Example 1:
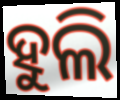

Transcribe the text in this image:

ହୁଲି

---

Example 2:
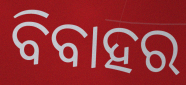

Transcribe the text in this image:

ବିବାହର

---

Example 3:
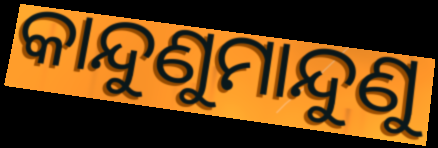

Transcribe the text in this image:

କାନ୍ଦୁଣୁମାନ୍ଦୁଣୁ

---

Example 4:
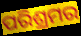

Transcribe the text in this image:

ପରିଶ୍ରମର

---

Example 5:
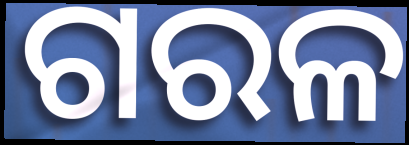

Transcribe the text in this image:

ଗରଳ